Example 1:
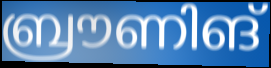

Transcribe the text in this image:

ബ്രൗണിങ്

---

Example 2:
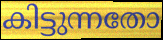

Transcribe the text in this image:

കിട്ടുന്നതോ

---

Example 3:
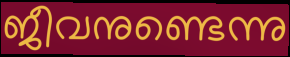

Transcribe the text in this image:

ജീവനുണ്ടെന്നു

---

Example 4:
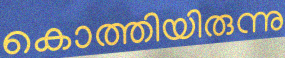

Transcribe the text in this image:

കൊത്തിയിരുന്നു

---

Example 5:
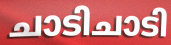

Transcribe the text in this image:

ചാടിചാടി